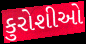
કુરોશીઓ